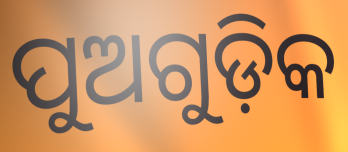
ପୁଅଗୁଡ଼ିକ